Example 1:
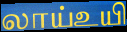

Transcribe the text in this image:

லாய்உயி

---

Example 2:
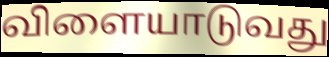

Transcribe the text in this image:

விளையாடுவது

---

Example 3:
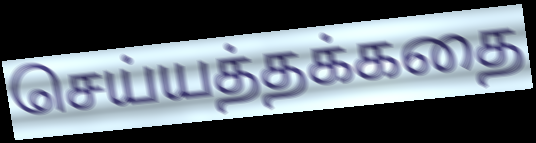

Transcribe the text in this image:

செய்யத்தக்கதை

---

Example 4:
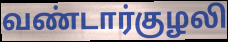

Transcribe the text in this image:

வண்டார்குழலி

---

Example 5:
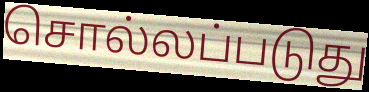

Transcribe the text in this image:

சொல்லப்படுது